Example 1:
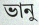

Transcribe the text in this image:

ভানু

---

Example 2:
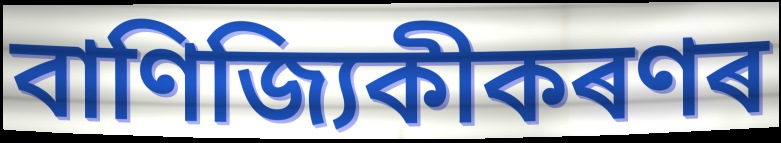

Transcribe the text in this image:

বাণিজ্যিকীকৰণৰ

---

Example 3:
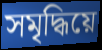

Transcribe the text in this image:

সমৃদ্ধিয়ে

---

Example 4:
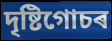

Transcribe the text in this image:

দৃষ্টিগোচৰ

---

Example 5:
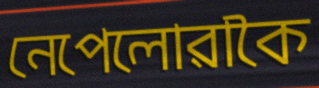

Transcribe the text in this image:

নেপেলোৱাকৈ